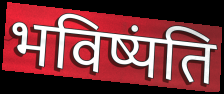
भविष्यंति